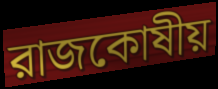
রাজকোষীয়